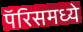
पॅरिसमध्ये